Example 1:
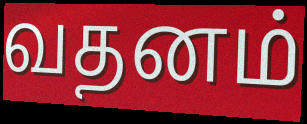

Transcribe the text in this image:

வதனம்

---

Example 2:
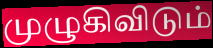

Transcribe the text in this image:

முழுகிவிடும்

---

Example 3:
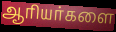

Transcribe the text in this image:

ஆரியர்களை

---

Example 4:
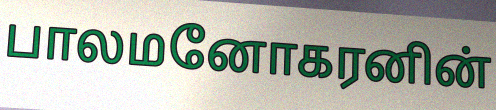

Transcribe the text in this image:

பாலமனோகரனின்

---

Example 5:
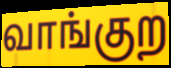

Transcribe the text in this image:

வாங்குற